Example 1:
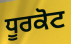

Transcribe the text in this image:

ਧੂਰਕੋਟ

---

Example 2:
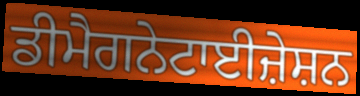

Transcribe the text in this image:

ਡੀਮੈਗਨੇਟਾਈਜ਼ੇਸ਼ਨ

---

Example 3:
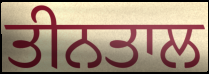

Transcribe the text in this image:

ਤੀਨਤਾਲ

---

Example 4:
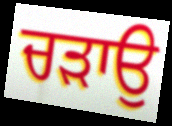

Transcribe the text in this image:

ਚੜਾਉ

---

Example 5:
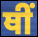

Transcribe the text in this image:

ਥੀਂ